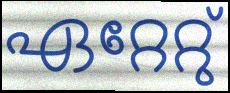
ഏറ്റേറ്റു്